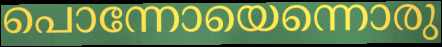
പൊന്നോയെന്നൊരു